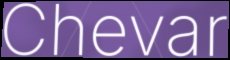
Chevar